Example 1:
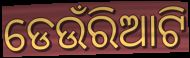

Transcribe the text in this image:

ଡେଉଁରିଆଟି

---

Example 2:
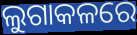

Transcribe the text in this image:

ଲୁଗାକଳରେ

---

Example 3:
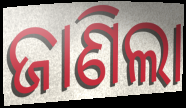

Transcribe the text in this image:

ଜାଣିଲା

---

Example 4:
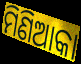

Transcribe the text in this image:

ମିଣିଆକା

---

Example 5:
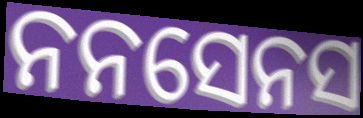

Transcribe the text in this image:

ନନସେନସ